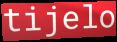
tijelo